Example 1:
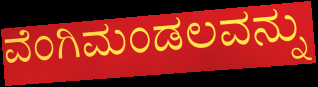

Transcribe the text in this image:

ವೆಂಗಿಮಂಡಲವನ್ನು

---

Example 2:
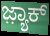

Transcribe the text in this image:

ಜ಼್ಯಾಕ್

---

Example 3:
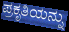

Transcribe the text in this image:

ಪ್ರಕೃತಿಯನ್ನು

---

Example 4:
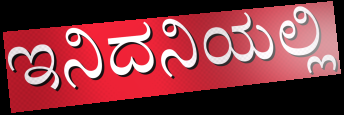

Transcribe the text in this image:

ಇನಿದನಿಯಲ್ಲಿ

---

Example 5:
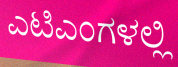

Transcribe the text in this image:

ಎಟಿಎಂಗಳಲ್ಲಿ